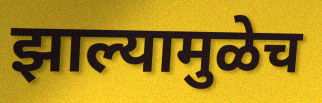
झाल्यामुळेच